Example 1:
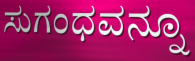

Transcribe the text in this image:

ಸುಗಂಧವನ್ನೂ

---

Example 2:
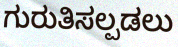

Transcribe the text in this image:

ಗುರುತಿಸಲ್ಪಡಲು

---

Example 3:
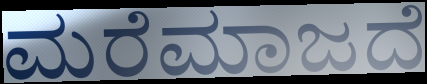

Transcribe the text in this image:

ಮರೆಮಾಜದೆ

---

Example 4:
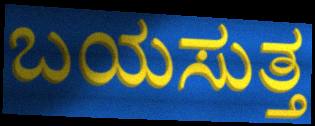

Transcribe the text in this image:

ಬಯಸುತ್ತ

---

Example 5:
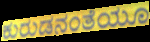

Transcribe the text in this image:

ಕುರುಡನಂತೆಯೂ